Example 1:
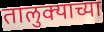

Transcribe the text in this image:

तालुक्याच्या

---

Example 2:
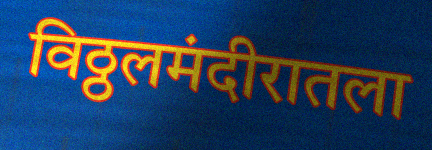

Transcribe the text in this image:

विठ्ठलमंदीरातला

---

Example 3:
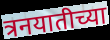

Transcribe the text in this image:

त्रनयातीच्या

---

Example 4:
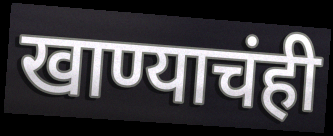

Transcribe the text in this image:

खाण्याचंही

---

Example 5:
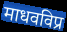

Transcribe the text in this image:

माधवविप्र